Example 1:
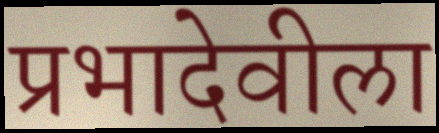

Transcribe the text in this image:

प्रभादेवीला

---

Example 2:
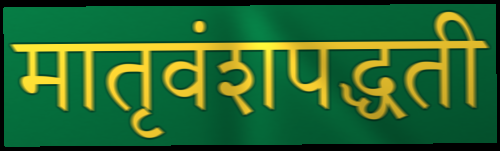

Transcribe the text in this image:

मातृवंशपद्धती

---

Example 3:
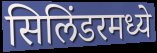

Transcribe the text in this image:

सिलिंडरमध्ये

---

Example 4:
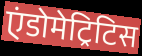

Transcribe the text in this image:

एंडोमेट्रिटिस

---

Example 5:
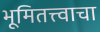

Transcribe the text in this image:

भूमितत्त्वाचा